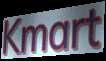
Kmart